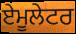
ਏਮੂਲੇਟਰ